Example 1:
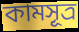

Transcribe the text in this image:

কামসূত্ৰ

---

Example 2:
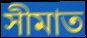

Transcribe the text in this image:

সীমাত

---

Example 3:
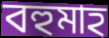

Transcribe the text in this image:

বহুমাহ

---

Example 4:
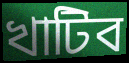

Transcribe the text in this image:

খাটিব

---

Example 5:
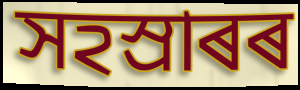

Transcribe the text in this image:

সহস্ৰাৰৰ